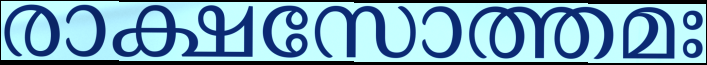
രാക്ഷസോത്തമഃ